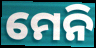
ମେନି